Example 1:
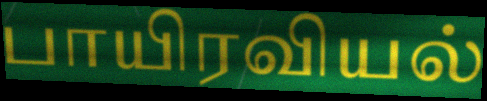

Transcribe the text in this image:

பாயிரவியல்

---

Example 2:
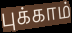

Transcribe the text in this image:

புக்காம்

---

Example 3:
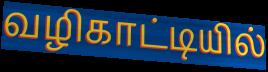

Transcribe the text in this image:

வழிகாட்டியில்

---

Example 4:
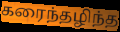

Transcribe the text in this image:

கரைந்தழிந்த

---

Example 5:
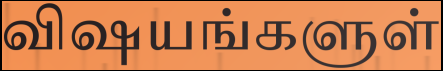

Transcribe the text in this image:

விஷயங்களுள்